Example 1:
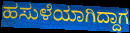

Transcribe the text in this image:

ಹಸುಳೆಯಾಗಿದ್ದಾಗ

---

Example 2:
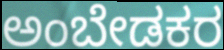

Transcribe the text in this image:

ಅಂಬೇಡಕರ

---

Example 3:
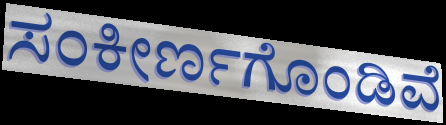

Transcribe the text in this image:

ಸಂಕೀರ್ಣಗೊಂಡಿವೆ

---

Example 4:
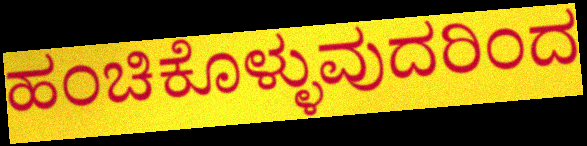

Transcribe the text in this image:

ಹಂಚಿಕೊಳ್ಳುವುದರಿಂದ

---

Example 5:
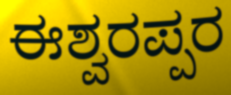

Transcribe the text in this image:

ಈಶ್ವರಪ್ಪರ